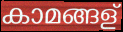
കാമങ്ങള്